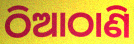
ଠିଆଠାଣି